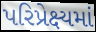
પરિપ્રેક્ષ્યમાં